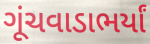
ગૂંચવાડાભર્યાં